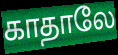
காதாலே